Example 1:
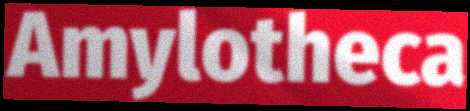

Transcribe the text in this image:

Amylotheca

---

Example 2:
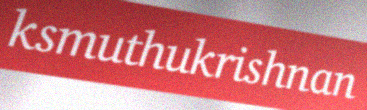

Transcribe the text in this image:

ksmuthukrishnan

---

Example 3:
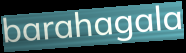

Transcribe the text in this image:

barahagala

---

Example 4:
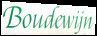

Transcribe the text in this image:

Boudewijn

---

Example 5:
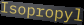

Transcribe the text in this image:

Isopropyl